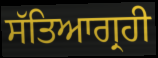
ਸੱਤਿਆਗ੍ਰਹੀ